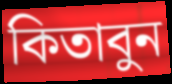
কিতাবুন